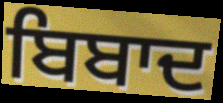
ਬਿਬਾਦ